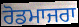
ਰੋਡਮਾਜਰਾ